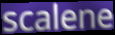
scalene